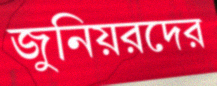
জুনিয়রদের